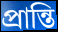
প্রান্তি